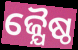
ଜ୍ଯୈଷ୍ଠ